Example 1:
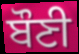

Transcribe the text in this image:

ਬੌਣੀ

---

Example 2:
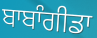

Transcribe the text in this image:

ਬਾਬਾੰਗੀਡਾ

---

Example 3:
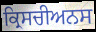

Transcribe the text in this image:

ਕ੍ਰਿਸਚੀਅਨਸ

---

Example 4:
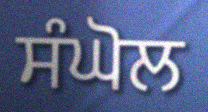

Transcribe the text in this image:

ਸੰਘੋਲ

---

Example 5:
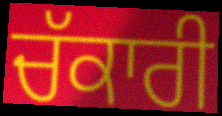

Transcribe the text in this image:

ਚੱਕਾਰੀ